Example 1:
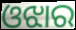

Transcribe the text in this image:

ଓଝାର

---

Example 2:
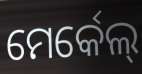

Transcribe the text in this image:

ମେର୍କେଲ୍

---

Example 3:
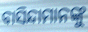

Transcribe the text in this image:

ବାସିନ୍ଦାମାନଙ୍କୁ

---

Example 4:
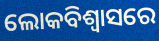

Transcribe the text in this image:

ଲୋକବିଶ୍ୱାସରେ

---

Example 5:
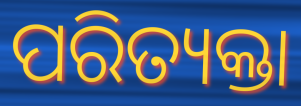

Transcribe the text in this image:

ପରିତ୍ୟକ୍ତା